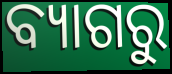
ବ୍ୟାଗରୁ